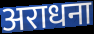
अराधना